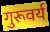
गुरूवर्य